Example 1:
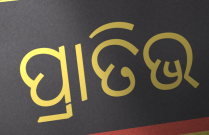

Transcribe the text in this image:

ପ୍ରାତିଭ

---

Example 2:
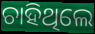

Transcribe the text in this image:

ଚାହିଥିଲେ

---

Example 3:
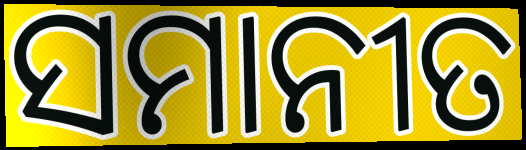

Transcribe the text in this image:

ସମାନୀତ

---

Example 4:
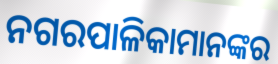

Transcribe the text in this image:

ନଗରପାଳିକାମାନଙ୍କର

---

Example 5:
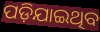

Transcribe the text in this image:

ପଡ଼ିଯାଇଥିବ